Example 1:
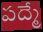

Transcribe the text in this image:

పద్మే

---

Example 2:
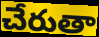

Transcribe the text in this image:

చేరుతా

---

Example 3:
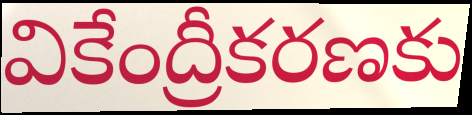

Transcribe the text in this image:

వికేంద్రీకరణకు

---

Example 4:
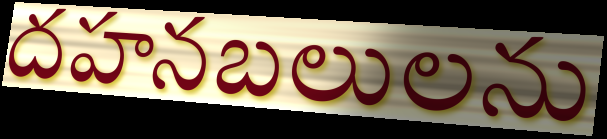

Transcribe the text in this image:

దహనబలులను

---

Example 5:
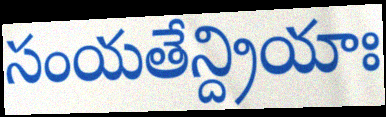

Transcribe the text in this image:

సంయతేన్ద్రియాః